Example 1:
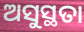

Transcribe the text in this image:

ଅସୁସ୍ଥତା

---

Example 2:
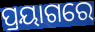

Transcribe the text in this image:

ପ୍ରୟାଗରେ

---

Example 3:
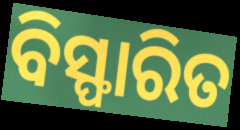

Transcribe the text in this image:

ବିସ୍ଫାରିତ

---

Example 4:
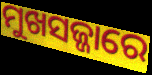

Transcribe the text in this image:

ମୁଖସଜ୍ଜାରେ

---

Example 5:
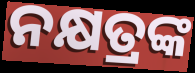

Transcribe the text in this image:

ନକ୍ଷତ୍ରଙ୍କ